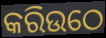
କରିଉଠେ